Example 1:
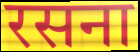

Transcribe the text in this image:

रसना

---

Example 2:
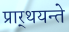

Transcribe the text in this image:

प्रार्थयन्ते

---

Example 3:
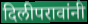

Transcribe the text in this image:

दिलीपरावांनी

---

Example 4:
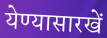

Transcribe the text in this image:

येण्यासारखें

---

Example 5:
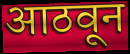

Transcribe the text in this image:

आठवून